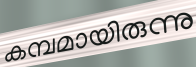
കമ്പമായിരുന്നു